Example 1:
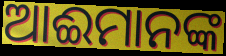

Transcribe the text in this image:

ଆଈମାନଙ୍କ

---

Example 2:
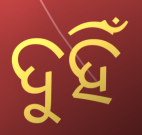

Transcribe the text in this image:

ଦୁହିଁ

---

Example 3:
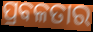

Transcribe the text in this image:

ପ୍ରବଳତାର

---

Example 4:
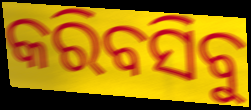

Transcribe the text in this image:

କରିବସିବୁ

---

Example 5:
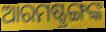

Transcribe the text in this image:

ଆରମଷ୍ଟ୍ରଙ୍ଗଙ୍କ